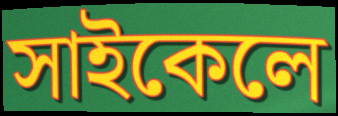
সাইকেলে